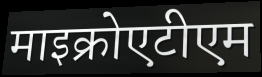
माइक्रोएटीएम